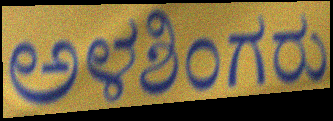
ಅಳಶಿಂಗರು